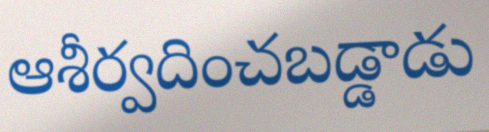
ఆశీర్వదించబడ్డాడు